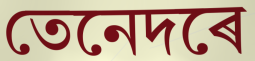
তেনেদৰে